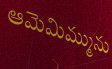
ఆమెమిమ్మును